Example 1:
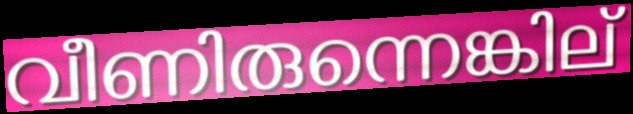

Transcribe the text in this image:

വീണിരുന്നെങ്കില്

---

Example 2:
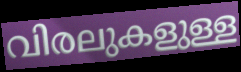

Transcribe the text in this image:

വിരലുകളുള്ള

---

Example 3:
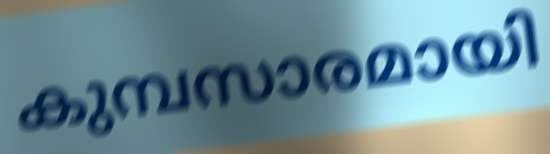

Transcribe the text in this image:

കുമ്പസാരമായി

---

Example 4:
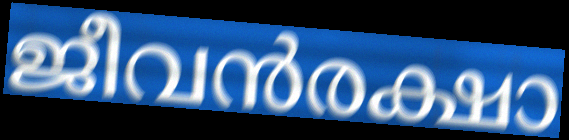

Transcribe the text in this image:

ജീവൻരക്ഷാ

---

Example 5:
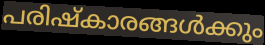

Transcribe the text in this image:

പരിഷ്കാരങ്ങൾക്കും